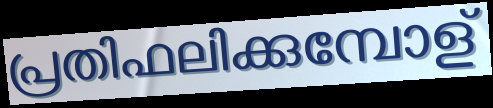
പ്രതിഫലിക്കുമ്പോള്